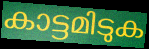
കാട്ടമിടുക